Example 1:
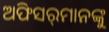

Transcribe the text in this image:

ଅଫିସର୍‌ମାନଙ୍କୁ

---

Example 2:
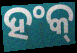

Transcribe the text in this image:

ହଂକ୍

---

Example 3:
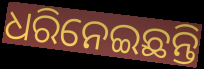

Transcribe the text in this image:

ଧରିନେଇଛନ୍ତି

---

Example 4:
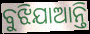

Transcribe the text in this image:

ବୁଝିଯାଆନ୍ତି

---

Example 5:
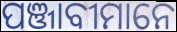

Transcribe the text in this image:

ପଞ୍ଜାବୀମାନେ